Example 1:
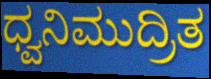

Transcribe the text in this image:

ಧ್ವನಿಮುದ್ರಿತ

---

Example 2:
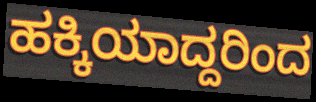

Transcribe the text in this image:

ಹಕ್ಕಿಯಾದ್ದರಿಂದ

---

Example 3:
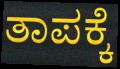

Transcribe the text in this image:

ತಾಪಕ್ಕೆ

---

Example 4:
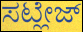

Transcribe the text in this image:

ಸಟ್ಲೇಜ್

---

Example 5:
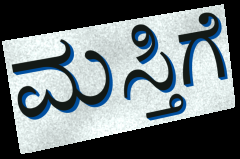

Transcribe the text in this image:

ಮಸ್ತಿಗೆ